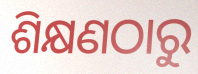
ଶିକ୍ଷଣଠାରୁ